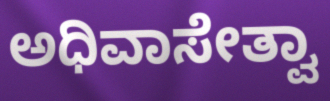
ಅಧಿವಾಸೇತ್ವಾ